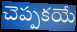
చెప్పకయే